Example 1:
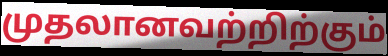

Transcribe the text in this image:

முதலானவற்றிற்கும்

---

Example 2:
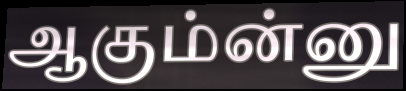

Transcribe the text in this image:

ஆகும்ன்னு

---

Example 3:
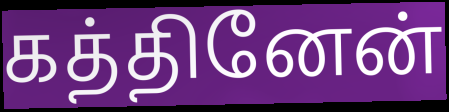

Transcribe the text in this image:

கத்தினேன்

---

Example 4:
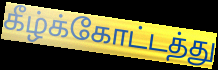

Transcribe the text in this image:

கீழ்க்கோட்டத்து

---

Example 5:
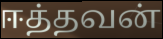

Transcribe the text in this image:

ஈத்தவன்